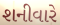
શનીવારે